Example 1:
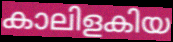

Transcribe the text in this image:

കാലിളകിയ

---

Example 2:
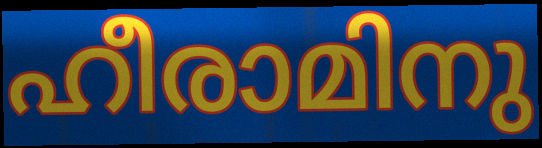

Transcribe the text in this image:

ഹീരാമിനു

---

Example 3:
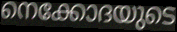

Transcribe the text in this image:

നെക്കോദയുടെ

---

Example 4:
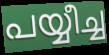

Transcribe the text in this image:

പയ്യീച്ച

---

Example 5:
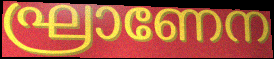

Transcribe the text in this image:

ഘ്രാണേന